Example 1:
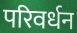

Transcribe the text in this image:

परिवर्धन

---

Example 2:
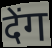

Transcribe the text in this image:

देंग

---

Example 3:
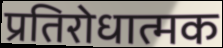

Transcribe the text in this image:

प्रतिरोधात्मक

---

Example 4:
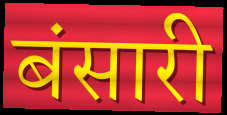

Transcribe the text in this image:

बंसारी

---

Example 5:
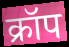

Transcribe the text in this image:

क्रॉप